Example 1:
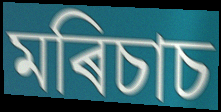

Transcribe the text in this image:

মৰিচাচ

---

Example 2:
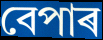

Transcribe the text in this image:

বেপাৰ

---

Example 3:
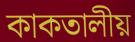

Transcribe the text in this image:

কাকতালীয়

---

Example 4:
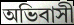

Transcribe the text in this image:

অভিবাসী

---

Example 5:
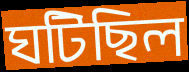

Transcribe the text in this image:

ঘটিছিল